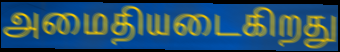
அமைதியடைகிறது